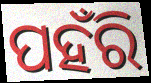
ପହଁରି